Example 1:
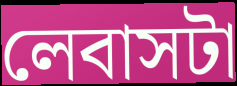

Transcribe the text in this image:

লেবাসটা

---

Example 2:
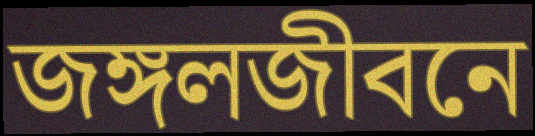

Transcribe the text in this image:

জঙ্গলজীবনে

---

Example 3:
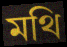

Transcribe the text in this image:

মথি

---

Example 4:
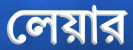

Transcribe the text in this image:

লেয়ার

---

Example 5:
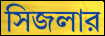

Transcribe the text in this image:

সিজলার